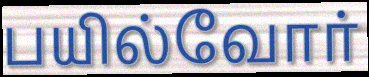
பயில்வோர்